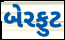
બેરફુટ